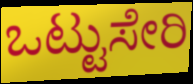
ಒಟ್ಟುಸೇರಿ